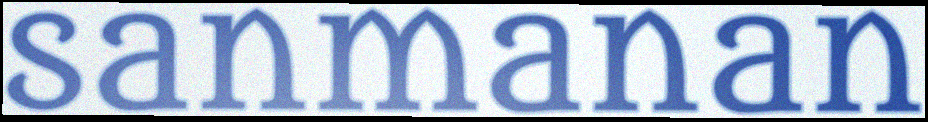
sanmanan